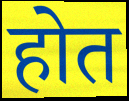
होत